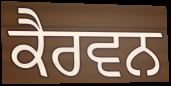
ਕੈਰਵਨ